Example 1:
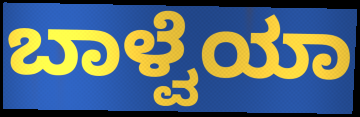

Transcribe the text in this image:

ಬಾಳ್ವೆಯಾ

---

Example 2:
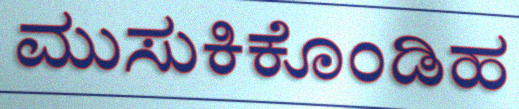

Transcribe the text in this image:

ಮುಸುಕಿಕೊಂಡಿಹ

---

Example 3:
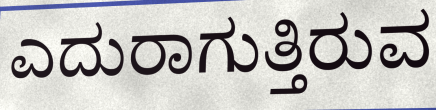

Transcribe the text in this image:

ಎದುರಾಗುತ್ತಿರುವ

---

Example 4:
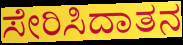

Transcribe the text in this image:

ಸೇರಿಸಿದಾತನ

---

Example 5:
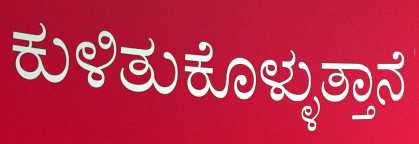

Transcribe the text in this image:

ಕುಳಿತುಕೊಳ್ಳುತ್ತಾನೆ